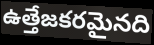
ఉత్తేజకరమైనది